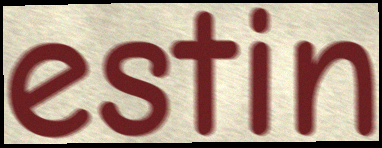
estin